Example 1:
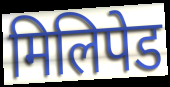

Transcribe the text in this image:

मिलिपेड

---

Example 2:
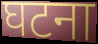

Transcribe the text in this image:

घटना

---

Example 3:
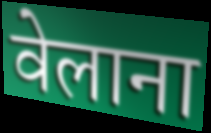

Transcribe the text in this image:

वेलाना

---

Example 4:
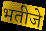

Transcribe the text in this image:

भतीजे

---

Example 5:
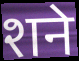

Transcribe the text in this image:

शने